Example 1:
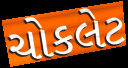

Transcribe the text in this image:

ચોકલેટ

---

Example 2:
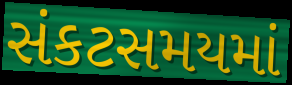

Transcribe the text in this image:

સંકટસમયમાં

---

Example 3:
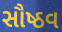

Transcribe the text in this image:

સૌષ્ઠવ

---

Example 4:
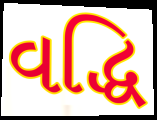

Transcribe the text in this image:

વદ્ધિ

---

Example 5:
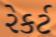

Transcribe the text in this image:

રેકર્ટ